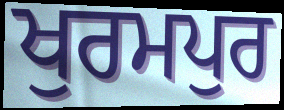
ਖੁਰਮਪੁਰ